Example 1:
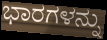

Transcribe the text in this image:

ಭಾರಗಳನ್ನು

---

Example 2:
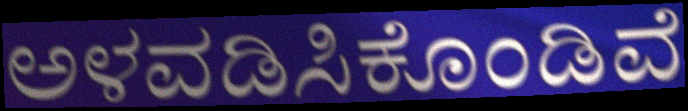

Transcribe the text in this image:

ಅಳವಡಿಸಿಕೊಂಡಿವೆ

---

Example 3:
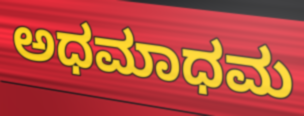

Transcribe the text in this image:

ಅಧಮಾಧಮ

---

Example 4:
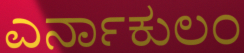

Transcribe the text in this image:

ಎರ್ನಾಕುಲಂ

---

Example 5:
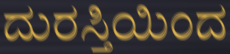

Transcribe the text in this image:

ದುರಸ್ತಿಯಿಂದ